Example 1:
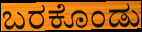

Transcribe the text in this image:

ಬರಕೊಂಡು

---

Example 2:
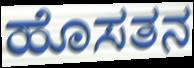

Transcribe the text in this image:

ಹೊಸತನ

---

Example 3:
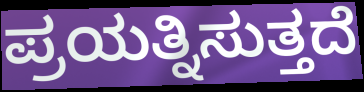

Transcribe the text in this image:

ಪ್ರಯತ್ನಿಸುತ್ತದೆ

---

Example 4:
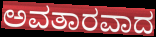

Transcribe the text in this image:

ಅವತಾರವಾದ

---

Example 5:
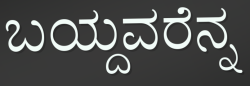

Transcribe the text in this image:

ಬಯ್ದವರೆನ್ನ